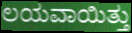
ಲಯವಾಯಿತ್ತು